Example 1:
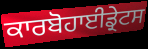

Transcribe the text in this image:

ਕਾਰਬੋਹਾਈਡ੍ਰੇਟਸ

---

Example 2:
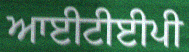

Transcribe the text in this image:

ਆਈਟੀਈਪੀ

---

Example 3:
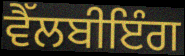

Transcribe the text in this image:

ਵੈੱਲਬੀਇੰਗ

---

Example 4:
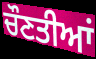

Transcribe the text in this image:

ਚੌਣਤੀਆਂ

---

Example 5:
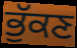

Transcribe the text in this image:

ਭੁੱਕਣ